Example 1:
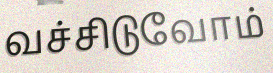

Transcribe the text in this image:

வச்சிடுவோம்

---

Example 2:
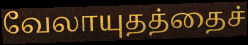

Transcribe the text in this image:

வேலாயுதத்தைச்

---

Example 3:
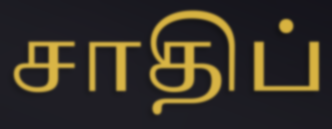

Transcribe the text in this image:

சாதிப்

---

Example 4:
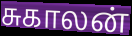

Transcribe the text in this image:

சுகாலன்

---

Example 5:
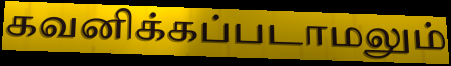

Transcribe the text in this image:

கவனிக்கப்படாமலும்